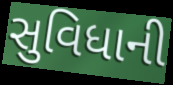
સુવિધાની